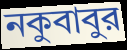
নকুবাবুর